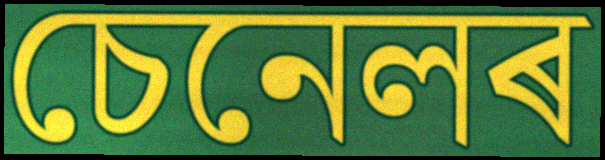
চেনেলৰ